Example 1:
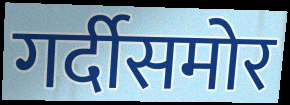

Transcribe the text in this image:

गर्दीसमोर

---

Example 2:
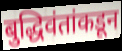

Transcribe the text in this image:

बुद्धिवंतांकडून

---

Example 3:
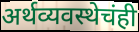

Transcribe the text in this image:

अर्थव्यवस्थेचंही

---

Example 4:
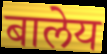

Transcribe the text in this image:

बालेय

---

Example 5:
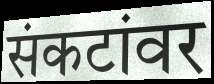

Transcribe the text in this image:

संकटांवर